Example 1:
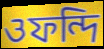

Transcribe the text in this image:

ওফন্দি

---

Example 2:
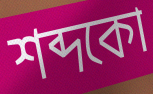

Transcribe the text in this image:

শব্দকো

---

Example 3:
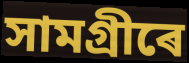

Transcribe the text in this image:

সামগ্ৰীৰে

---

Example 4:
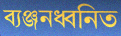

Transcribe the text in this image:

ব্যঞ্জনধ্বনিত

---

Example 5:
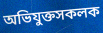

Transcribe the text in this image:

অভিযুক্তসকলক